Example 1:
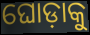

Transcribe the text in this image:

ଘୋଡ଼ାକୁ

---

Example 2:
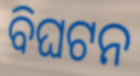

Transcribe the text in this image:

ବିଘଟନ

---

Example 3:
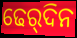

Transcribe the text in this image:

ଢେର୍‌ଦିନ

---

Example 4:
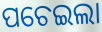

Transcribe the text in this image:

ପଚେଇଲା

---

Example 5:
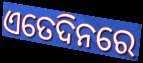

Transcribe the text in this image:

ଏତେଦିନରେ